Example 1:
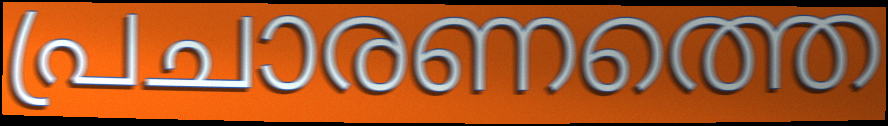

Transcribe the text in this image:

പ്രചാരണത്തെ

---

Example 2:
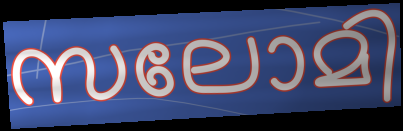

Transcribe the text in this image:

സലോമി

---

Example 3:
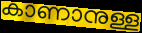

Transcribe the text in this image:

കാണാനുള്ള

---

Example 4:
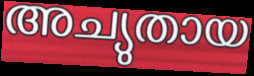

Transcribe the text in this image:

അച്യുതായ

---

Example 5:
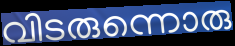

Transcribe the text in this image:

വിടരുന്നൊരു